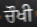
ਚੌਖੀ